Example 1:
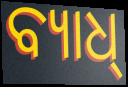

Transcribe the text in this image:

ବ୍ୟାଧ୍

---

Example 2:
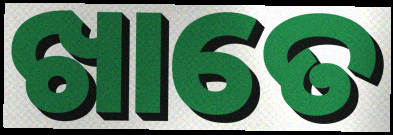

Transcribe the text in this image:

ଖାତେ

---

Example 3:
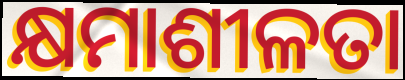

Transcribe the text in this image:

କ୍ଷମାଶୀଳତା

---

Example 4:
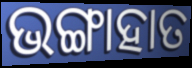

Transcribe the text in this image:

ଭଙ୍ଗାହାତ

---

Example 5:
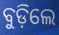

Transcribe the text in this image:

ବୁଡ଼ିଲେ